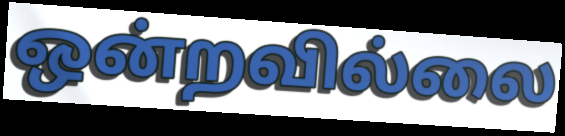
ஒன்றவில்லை